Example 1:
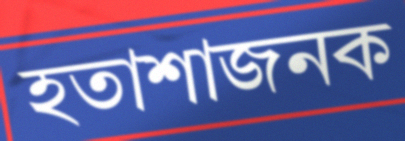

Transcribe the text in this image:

হতাশাজনক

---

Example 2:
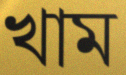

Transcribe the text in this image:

খাম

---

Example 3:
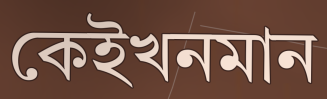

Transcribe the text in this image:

কেইখনমান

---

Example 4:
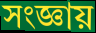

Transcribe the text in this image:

সংজ্ঞায়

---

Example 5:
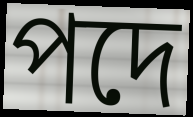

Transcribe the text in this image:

পদে